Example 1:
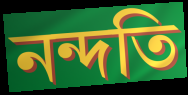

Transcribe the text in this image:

নন্দতি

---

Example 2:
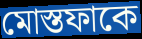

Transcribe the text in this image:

মোস্তফাকে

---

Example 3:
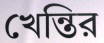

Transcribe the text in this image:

খেন্তির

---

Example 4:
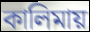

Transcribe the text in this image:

কালিমায়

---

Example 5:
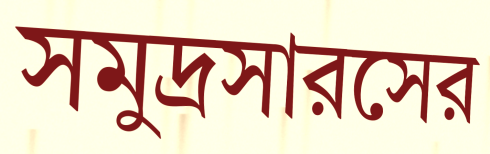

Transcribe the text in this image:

সমুদ্রসারসের